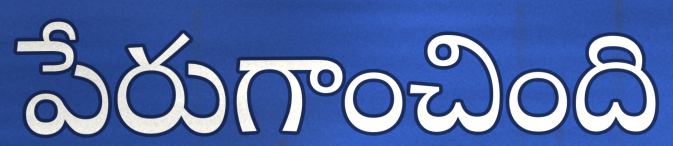
పేరుగాంచింది